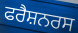
ਫਰੈਸ਼ਨਰਸ